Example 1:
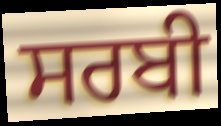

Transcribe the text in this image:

ਸਰਬੀ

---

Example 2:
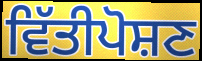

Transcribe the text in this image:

ਵਿੱਤੀਪੋਸ਼ਣ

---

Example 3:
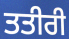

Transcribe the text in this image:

ਤਤੀਰੀ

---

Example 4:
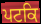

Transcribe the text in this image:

ਪਟਕਿ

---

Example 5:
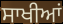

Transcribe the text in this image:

ਸਾਖੀਆਂ